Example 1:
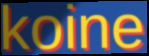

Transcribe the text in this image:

koine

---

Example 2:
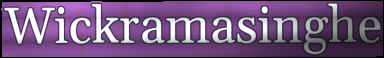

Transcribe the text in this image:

Wickramasinghe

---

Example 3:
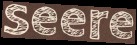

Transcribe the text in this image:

seere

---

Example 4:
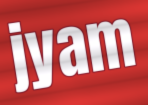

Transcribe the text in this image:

jyam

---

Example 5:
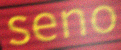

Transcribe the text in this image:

seno